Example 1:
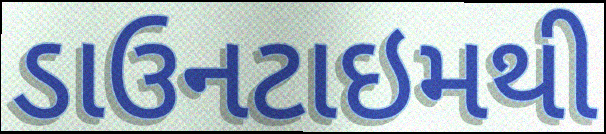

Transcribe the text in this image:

ડાઉનટાઇમથી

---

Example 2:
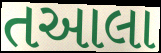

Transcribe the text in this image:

તઆલા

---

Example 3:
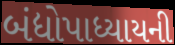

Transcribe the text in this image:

બંદ્યોપાધ્યાયની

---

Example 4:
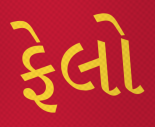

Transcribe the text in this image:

ફેલો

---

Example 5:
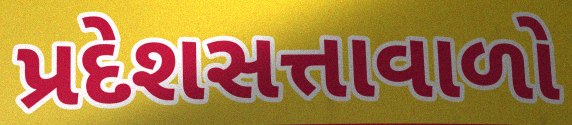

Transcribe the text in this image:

પ્રદેશસત્તાવાળો